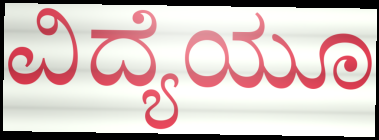
ವಿದ್ಯೆಯೂ